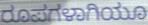
ರೂಪಗಳಾಗಿಯೂ